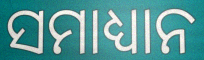
ସମାଧ୍ୟାନ